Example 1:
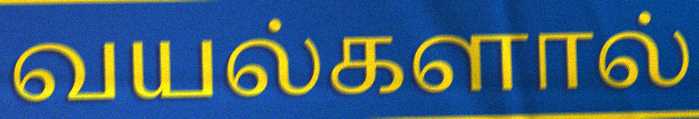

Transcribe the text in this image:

வயல்களால்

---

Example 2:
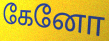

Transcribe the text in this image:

கேனோ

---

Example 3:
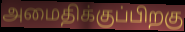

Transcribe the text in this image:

அமைதிக்குப்பிறகு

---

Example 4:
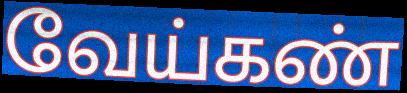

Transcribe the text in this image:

வேய்கண்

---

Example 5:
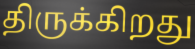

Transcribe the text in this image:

திருக்கிறது